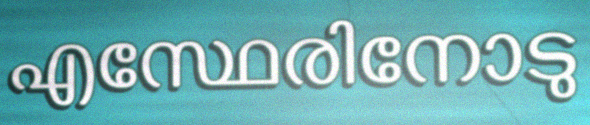
എസ്ഥേരിനോടു